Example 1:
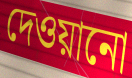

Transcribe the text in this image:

দেওয়ানো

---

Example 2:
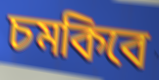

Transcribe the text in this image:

চমকিবে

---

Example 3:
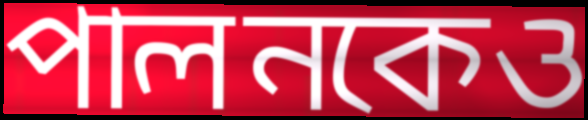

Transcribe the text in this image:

পালনকেও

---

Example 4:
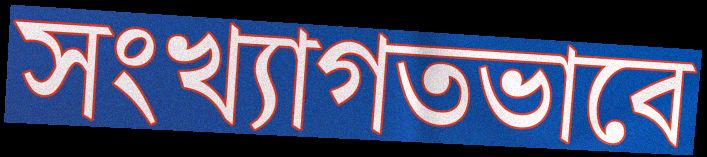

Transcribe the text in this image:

সংখ্যাগতভাবে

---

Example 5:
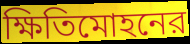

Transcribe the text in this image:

ক্ষিতিমোহনের